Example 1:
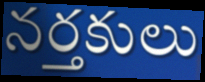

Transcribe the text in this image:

నర్తకులు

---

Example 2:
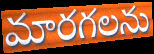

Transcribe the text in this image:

మారగలను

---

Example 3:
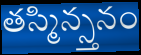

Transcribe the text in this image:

తస్మిన్స్తనం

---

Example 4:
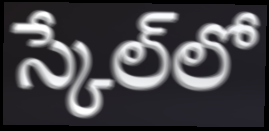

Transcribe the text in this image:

స్కేల్‌లో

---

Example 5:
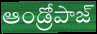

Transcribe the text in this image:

ఆండ్రోపాజ్